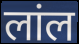
लांल